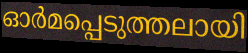
ഓർമപ്പെടുത്തലായി